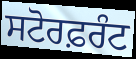
ਸਟੋਰਫ਼ਰੰਟ